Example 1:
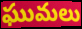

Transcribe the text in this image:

ఘుమలు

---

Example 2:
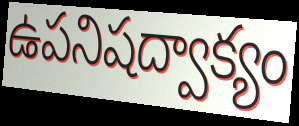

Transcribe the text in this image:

ఉపనిషద్వాక్యం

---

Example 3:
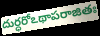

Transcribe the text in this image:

దుర్ధరోఽథాపరాజితః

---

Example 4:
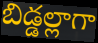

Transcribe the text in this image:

బిడ్డల్లాగా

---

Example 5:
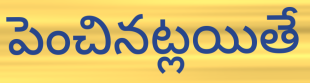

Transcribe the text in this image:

పెంచినట్లయితే